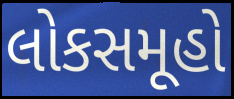
લોકસમૂહો